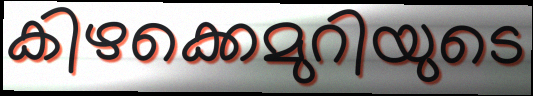
കിഴക്കെമുറിയുടെ